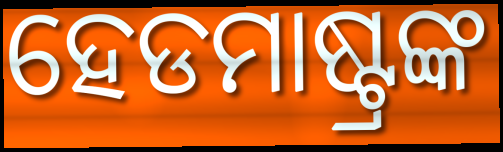
ହେଡମାଷ୍ଟ୍ରଙ୍କ